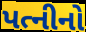
પત્નીનો